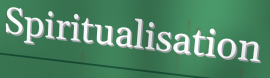
Spiritualisation